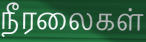
நீரலைகள்